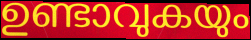
ഉണ്ടാവുകയും